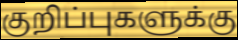
குறிப்புகளுக்கு